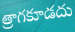
త్రాగకూడదు